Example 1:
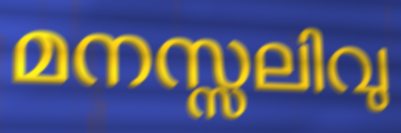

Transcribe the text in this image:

മനസ്സലിവു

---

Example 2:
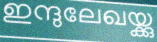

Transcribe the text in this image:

ഇന്ദുലേഖയ്ക്കു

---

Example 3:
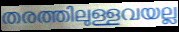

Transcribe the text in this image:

തരത്തിലുള്ളവയല്ല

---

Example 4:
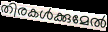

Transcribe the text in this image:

തിരകൾക്കുമേൽ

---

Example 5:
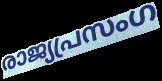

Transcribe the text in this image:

രാജ്യപ്രസംഗ